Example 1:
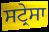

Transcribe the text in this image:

ਸਟ੍ਰੇਸਾ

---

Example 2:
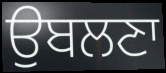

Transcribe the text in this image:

ਉਬਲਣਾ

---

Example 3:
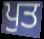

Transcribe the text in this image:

ਪੁਤ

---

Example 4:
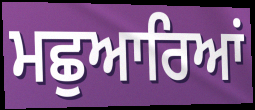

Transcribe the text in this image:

ਮਛੁਆਰਿਆਂ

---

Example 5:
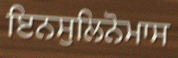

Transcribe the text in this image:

ਇਨਸੁਲਿਨੋਮਾਸ